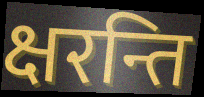
क्षरन्ति